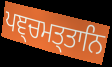
ਪਞ੍ਚਮਤ੍ਤਾਨਿ